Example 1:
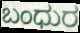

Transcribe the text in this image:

ಬಂಧುರ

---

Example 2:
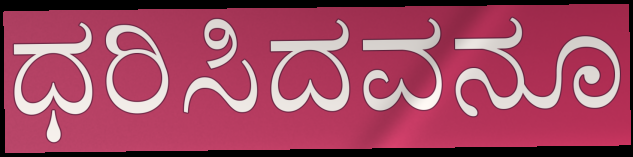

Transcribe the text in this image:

ಧರಿಸಿದವನೂ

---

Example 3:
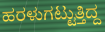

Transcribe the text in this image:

ಹರಳುಗಟ್ಟುತ್ತಿದ್ದ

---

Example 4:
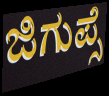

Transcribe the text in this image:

ಜಿಗುಪ್ಸೆ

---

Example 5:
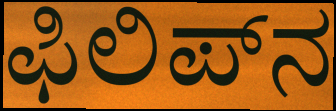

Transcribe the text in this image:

ಫಿಲಿಪ್‌ನ